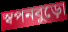
স্বপনবুড়ো